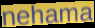
nehama